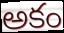
అకం